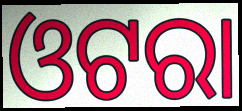
ଓଟରା